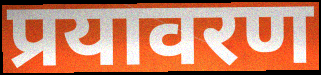
प्रयावरण